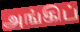
அங்கிப்